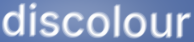
discolour